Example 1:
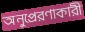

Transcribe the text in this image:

অনুপ্রেরণাকারী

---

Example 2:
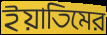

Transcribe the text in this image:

ইয়াতিমের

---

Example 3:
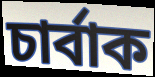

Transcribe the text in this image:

চার্বাক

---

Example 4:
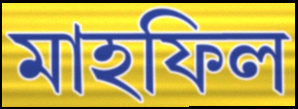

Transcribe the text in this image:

মাহফিল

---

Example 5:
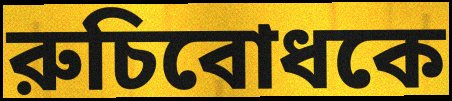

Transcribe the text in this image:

রুচিবোধকে